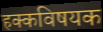
हक्कविषयक